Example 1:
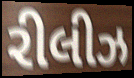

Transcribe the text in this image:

રીલીઝ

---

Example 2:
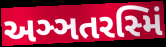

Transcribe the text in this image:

અઞ્ઞતરસ્મિં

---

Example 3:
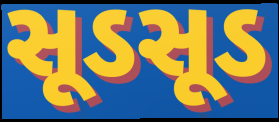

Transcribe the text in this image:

સૂડસૂડ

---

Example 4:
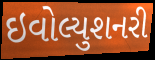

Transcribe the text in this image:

ઇવોલ્યુશનરી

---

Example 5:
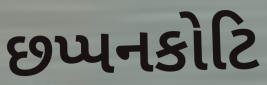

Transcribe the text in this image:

છપ્પનકોટિ